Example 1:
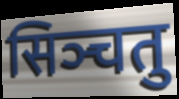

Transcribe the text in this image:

सिञ्चतु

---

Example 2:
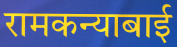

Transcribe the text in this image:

रामकन्याबाई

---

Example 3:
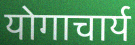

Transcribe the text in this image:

योगाचार्य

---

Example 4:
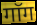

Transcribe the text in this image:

गॉग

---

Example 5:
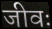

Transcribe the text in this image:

जीवः